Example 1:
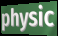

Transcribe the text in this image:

physic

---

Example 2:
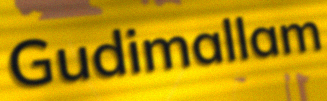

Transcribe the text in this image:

Gudimallam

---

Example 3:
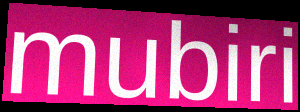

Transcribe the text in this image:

mubiri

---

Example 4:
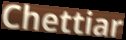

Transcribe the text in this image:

Chettiar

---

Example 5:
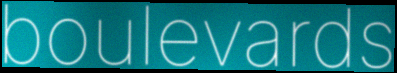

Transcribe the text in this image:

boulevards